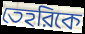
তেহরিকে